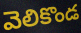
వెలికొండ